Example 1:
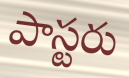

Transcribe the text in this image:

పాస్టరు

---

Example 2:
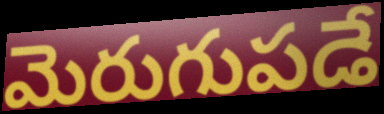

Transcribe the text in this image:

మెరుగుపడే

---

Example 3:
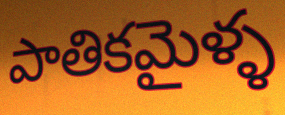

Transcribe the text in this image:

పాతికమైళ్ళ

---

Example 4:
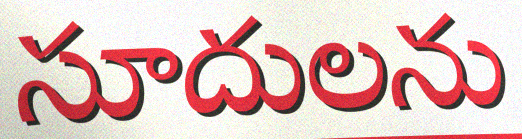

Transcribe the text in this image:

సూదులను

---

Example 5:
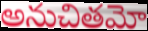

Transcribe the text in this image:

అనుచితమో